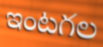
ఇంటగల